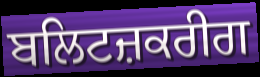
ਬਲਿਟਜ਼ਕਰੀਗ